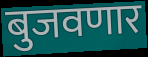
बुजवणार